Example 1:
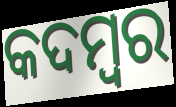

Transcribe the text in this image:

କଦମ୍ବର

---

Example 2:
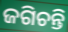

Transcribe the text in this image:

ଜଗିଚନ୍ତି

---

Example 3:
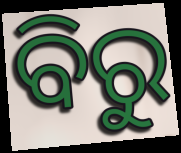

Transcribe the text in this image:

ବିରୁ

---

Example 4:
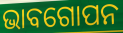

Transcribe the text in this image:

ଭାବଗୋପନ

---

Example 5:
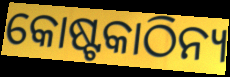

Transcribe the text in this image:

କୋଷ୍ଟକାଠିନ୍ୟ